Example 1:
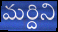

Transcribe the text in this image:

మర్దిని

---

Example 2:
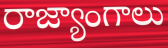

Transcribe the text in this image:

రాజ్యాంగాలు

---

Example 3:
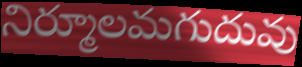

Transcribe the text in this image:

నిర్మూలమగుదువు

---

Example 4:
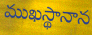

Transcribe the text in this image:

ముఖస్థానాన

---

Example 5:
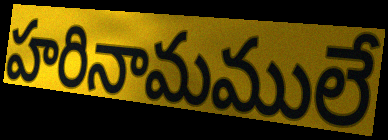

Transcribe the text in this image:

హరినామములే